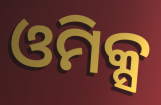
ଓମିକ୍ସ